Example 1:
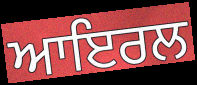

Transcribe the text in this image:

ਆਇਰਲ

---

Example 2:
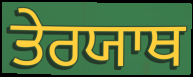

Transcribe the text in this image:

ਤੇਰਯਾਥ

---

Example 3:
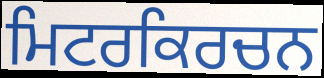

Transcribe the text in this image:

ਮਿਟਰਕਿਰਚਨ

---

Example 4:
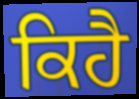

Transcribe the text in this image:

ਕਿਹੈ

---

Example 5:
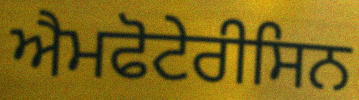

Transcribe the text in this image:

ਐਮਫੋਟੇਰੀਸਿਨ